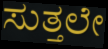
ಸುತ್ತಲೇ